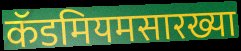
कॅडमियमसारख्या